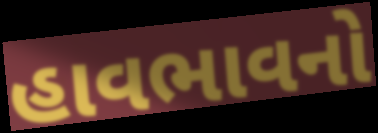
હાવભાવનો